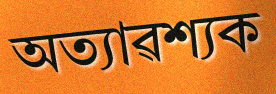
অত্যাৱশ্যক